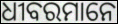
ଧୀବରମାନେ